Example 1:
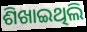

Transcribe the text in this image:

ଶିଖାଇଥିଲି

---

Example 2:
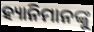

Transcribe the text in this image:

ହ୍ୟାନିମାନଙ୍କୁ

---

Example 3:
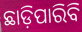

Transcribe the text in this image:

ଛାଡ଼ିପାରିବି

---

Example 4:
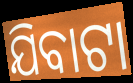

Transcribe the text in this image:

ଯିବାଟା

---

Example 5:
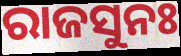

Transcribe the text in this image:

ରାଜସୁନଃ